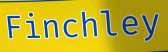
Finchley